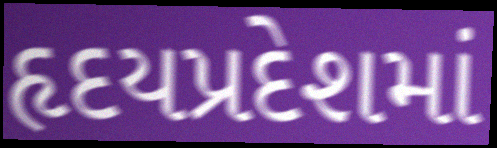
હૃદયપ્રદેશમાં